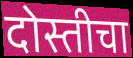
दोस्तीचा